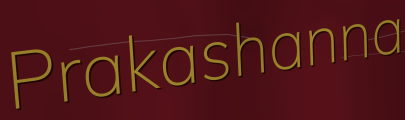
Prakashanna